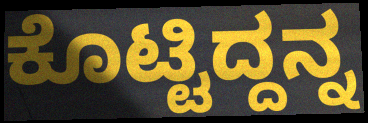
ಕೊಟ್ಟಿದ್ದನ್ನ